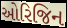
ઓરિજિન